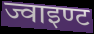
ज्वाइण्ट